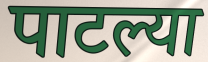
पाटल्या